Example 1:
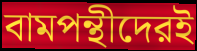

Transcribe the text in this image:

বামপন্থীদেরই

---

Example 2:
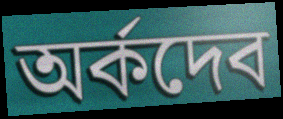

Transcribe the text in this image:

অর্কদেব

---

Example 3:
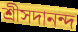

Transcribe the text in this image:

শ্রীসদানন্দ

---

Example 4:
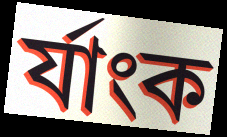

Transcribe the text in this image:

র্যাংক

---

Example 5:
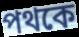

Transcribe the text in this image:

পথকে